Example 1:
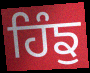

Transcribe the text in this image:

ਹਿੰਙੁ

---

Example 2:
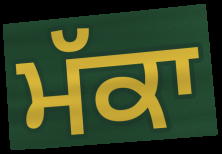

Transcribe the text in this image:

ਮੱਕਾ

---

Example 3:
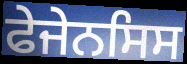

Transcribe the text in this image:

ਫੇਜੇਨਸਿਸ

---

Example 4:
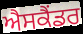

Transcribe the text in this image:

ਐਸਕੈਂਡਰ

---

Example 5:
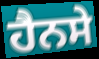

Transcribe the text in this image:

ਹੈਨਸੇ